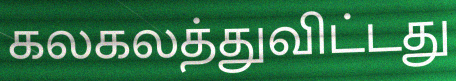
கலகலத்துவிட்டது